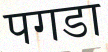
पगडा